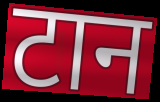
टान